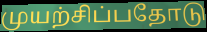
முயற்சிப்பதோடு